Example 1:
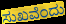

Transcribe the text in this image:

ಸುಖವೆಂದು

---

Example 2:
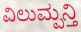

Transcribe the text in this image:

ವಿಲುಮ್ಪನ್ತಿ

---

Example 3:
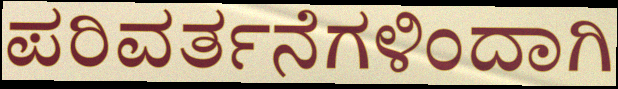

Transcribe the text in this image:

ಪರಿವರ್ತನೆಗಳಿಂದಾಗಿ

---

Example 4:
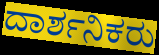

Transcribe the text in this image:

ದಾರ್ಶನಿಕರು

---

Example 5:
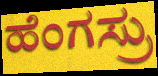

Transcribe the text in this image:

ಹೆಂಗಸ್ರು